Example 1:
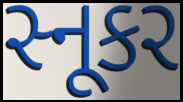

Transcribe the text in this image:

સ્નૂકર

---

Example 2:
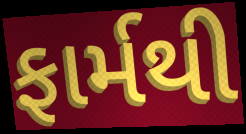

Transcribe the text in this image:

ફાર્મથી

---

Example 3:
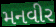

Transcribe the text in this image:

મનવીર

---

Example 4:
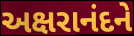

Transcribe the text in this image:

અક્ષરાનંદને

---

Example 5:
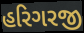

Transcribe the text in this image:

હરિગરજી